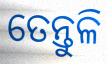
ତେନ୍ତୁଳି